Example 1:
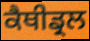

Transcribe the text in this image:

ਕੈਥੀਡ੍ਰਲ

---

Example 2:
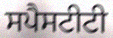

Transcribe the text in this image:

ਸਪੈਸਟੀਟੀ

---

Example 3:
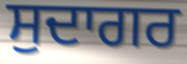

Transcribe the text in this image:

ਸੁਦਾਗਰ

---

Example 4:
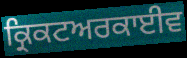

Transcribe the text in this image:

ਕ੍ਰਿਕਟਅਰਕਾਈਵ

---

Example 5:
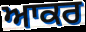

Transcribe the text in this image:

ਆਕਰ